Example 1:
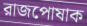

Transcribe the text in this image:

রাজপোষাক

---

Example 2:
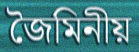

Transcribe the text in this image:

জৈমিনীয়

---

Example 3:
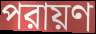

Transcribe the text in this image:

পরায়ণ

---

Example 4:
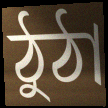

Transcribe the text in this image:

ঠুঠা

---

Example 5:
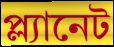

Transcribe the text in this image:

প্ল্যানেট